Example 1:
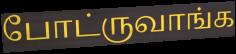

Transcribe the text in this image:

போட்ருவாங்க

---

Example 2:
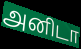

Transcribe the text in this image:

அனிடா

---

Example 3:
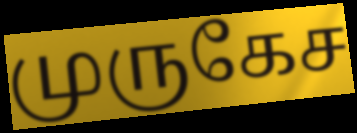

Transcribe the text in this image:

முருகேச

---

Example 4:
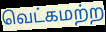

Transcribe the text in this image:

வெட்கமற்ற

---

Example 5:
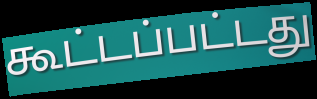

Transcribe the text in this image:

கூட்டப்பட்டது